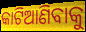
କାଟିଆଣିବାକୁ